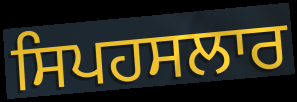
ਸਿਪਹਸਲਾਰ